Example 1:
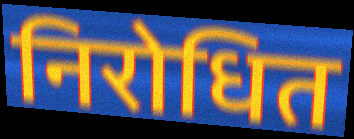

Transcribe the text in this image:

निरोधित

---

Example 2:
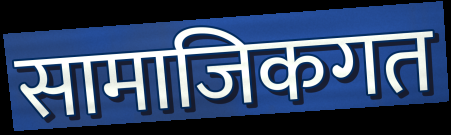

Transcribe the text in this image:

सामाजिकगत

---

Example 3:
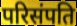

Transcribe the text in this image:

परिसंपति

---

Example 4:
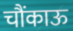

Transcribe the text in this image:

चौंकाऊ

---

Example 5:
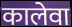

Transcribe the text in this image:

कालेवा